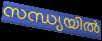
സന്ധ്യയിൽ